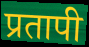
प्रतापी